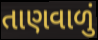
તાણવાળું